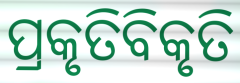
ପ୍ରକୃତିବିକୃତି